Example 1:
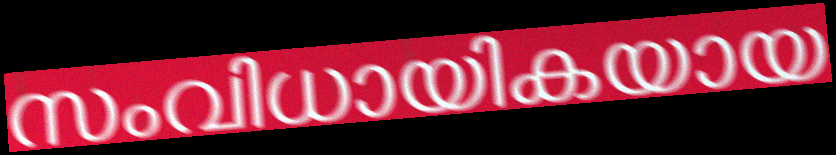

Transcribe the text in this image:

സംവിധായികയായ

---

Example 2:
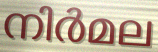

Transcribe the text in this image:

നിർമല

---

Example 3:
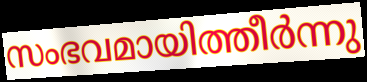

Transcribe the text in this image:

സംഭവമായിത്തീർന്നു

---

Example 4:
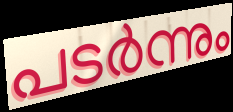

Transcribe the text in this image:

പടർന്നും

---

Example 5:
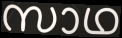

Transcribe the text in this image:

സാഥ